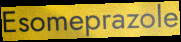
Esomeprazole